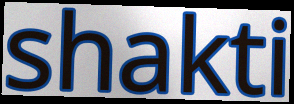
shakti